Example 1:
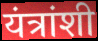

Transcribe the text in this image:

यंत्रांशी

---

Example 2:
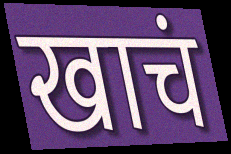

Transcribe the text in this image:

खाचं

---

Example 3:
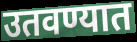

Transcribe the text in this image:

उतवण्यात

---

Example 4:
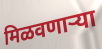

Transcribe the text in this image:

मिळवणाऱ्या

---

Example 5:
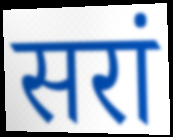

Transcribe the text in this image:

सरां